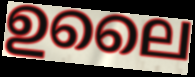
ഉലൈ